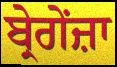
ਬ੍ਰੇਗੇਂਜ਼ਾ